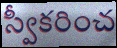
స్వీకరించ